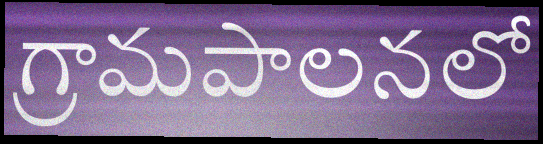
గ్రామపాలనలో